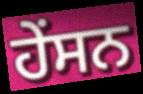
ਹੇਂਸਨ